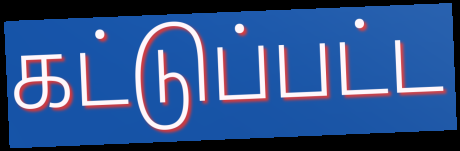
கட்டுப்பட்ட